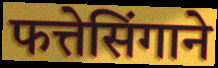
फत्तेसिंगाने